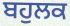
ਬਹੁਲਕ